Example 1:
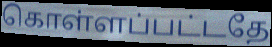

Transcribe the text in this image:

கொள்ளப்பட்டதே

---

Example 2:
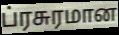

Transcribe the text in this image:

ப்ரசுரமான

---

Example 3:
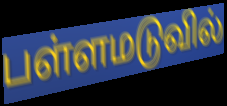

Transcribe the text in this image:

பள்ளமடுவில்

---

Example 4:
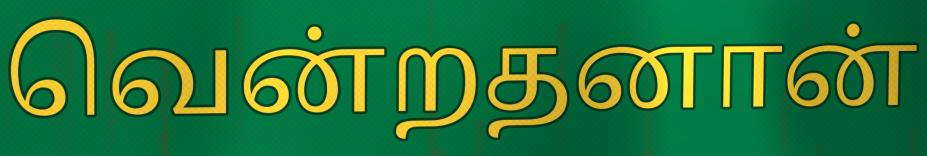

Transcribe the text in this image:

வென்றதனான்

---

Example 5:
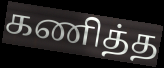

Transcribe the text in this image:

கணித்த